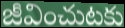
జీవించుటకు